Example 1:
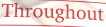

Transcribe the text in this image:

Throughout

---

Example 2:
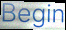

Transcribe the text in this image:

Begin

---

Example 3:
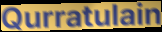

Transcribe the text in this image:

Qurratulain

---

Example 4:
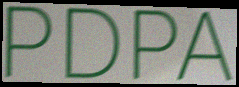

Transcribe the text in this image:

PDPA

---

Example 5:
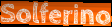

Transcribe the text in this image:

Solferino